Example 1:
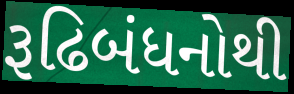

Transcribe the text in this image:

રૂઢિબંધનોથી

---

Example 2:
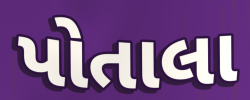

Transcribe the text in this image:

પોતાલા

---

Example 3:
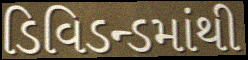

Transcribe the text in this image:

ડિવિડન્ડમાંથી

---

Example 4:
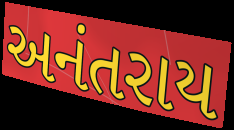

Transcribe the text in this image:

અનંતરાય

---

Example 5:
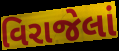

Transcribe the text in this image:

વિરાજેલાં